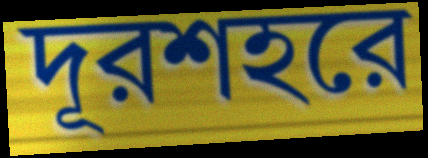
দূরশহরে